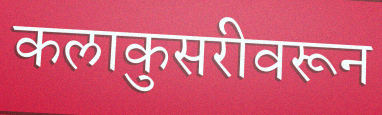
कलाकुसरीवरून